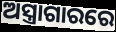
ଅସ୍ତ୍ରାଗାରରେ